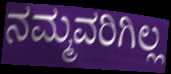
ನಮ್ಮವರಿಗಿಲ್ಲ